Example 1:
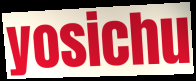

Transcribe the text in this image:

yosichu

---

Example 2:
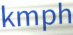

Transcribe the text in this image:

kmph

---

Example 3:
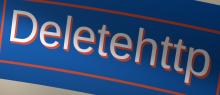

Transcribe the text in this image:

Deletehttp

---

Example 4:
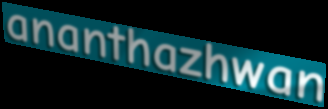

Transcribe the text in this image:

ananthazhwan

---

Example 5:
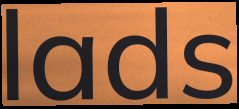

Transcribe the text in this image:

lads